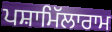
ਪਸ਼ਾਮਿੱਲਾਰਾਮ